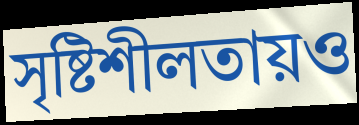
সৃষ্টিশীলতায়ও